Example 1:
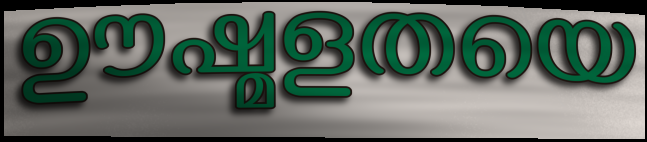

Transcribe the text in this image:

ഊഷ്മളതയെ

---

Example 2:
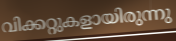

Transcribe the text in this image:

വിക്കറ്റുകളായിരുന്നു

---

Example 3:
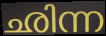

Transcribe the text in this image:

ഛിന്ന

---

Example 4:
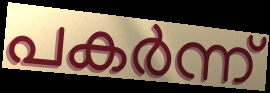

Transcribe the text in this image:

പകർന്ന്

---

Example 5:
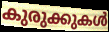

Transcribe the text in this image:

കുരുക്കുകൾ